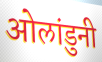
ओलांडुनी